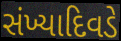
સંખ્યાદિવડે